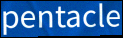
pentacle